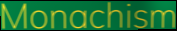
Monachism